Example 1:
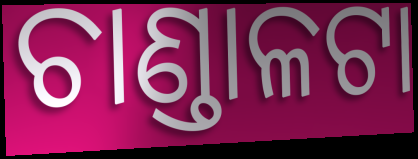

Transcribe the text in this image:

ଚାଣ୍ଡାଳଟା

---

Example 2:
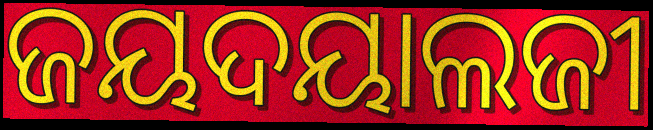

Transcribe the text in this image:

ଜୟଦୟାଲଜୀ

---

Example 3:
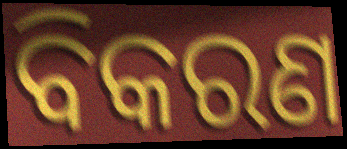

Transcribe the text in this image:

ବିକରଣ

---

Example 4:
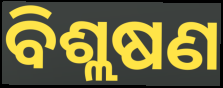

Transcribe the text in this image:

ବିଶ୍ଲଷଣ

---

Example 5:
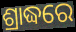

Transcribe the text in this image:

ଶ୍ରାଦ୍ଧରେ